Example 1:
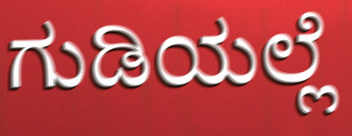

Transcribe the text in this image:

ಗುಡಿಯಲ್ಲೆ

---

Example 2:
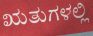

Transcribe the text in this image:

ಋತುಗಳಲ್ಲಿ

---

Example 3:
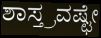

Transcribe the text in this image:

ಶಾಸ್ತ್ರವಷ್ಟೇ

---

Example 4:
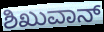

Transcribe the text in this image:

ಶಿಖುವಾನ್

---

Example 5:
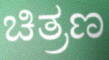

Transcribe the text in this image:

ಚಿತ್ರಣ